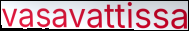
vasavattissa